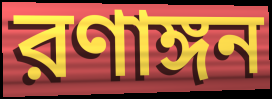
রণাঙ্গন